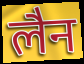
लैन